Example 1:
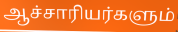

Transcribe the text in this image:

ஆச்சாரியர்களும்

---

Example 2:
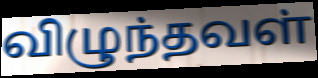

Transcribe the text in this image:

விழுந்தவள்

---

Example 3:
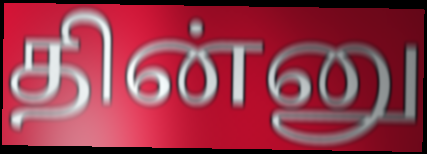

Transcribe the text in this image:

தின்னு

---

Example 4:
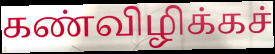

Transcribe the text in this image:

கண்விழிக்கச்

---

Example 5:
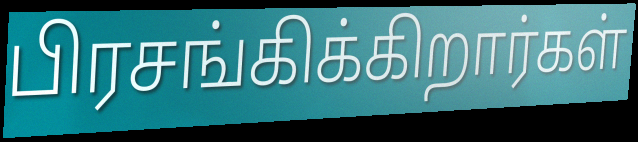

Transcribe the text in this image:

பிரசங்கிக்கிறார்கள்